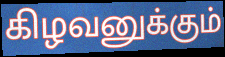
கிழவனுக்கும்